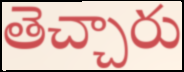
తెచ్చారు